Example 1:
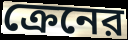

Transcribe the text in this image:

ক্রেনের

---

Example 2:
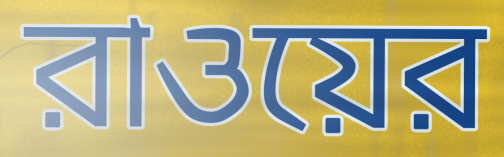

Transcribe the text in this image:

রাওয়ের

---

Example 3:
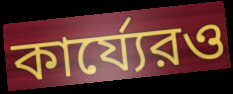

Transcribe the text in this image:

কার্য্যেরও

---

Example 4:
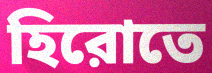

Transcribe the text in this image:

হিরোতে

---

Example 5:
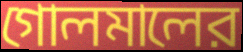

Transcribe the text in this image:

গোলমালের